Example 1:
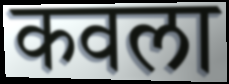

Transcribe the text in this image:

कवला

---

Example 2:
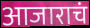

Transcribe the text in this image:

आजाराचं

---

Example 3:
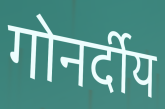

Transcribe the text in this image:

गोनर्दीय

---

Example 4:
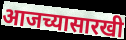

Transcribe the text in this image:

आजच्यासारखी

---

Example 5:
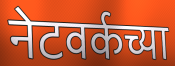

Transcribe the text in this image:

नेटवर्कच्या